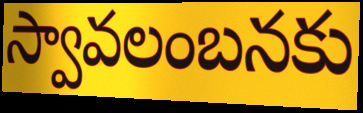
స్వావలంబనకు